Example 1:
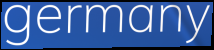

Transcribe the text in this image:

germany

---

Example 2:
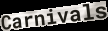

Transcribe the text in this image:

Carnivals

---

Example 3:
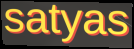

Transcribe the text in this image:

satyas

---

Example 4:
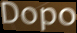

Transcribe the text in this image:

Dopo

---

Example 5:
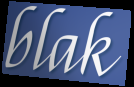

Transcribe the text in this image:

blak